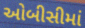
ઓબીસીમાં